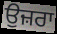
ਉਜ਼ਰਾ